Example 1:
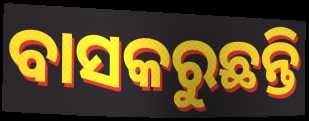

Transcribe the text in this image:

ବାସକରୁଛନ୍ତି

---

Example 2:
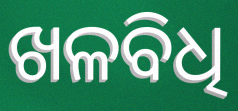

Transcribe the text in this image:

ଖଳବିଧି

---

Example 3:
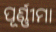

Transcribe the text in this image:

ପୂର୍ଣ୍ଣୀମା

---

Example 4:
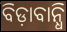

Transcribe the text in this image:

ବିଡ଼ାବାନ୍ଧି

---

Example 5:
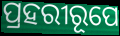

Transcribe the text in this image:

ପ୍ରହରୀରୂପେ